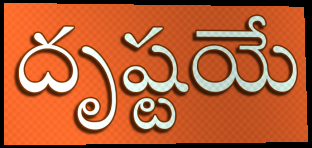
దృష్టయే